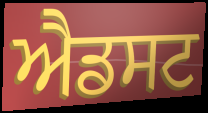
ਐਡਸਟ